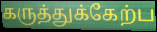
கருத்துக்கேற்ப